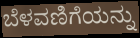
ಬೆಳವಣಿಗೆಯನ್ನು